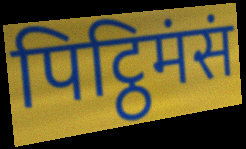
पिट्ठिमंसं